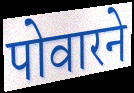
पोवारने